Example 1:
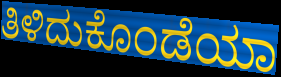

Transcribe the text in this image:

ತಿಳಿದುಕೊಂಡೆಯಾ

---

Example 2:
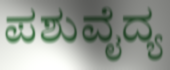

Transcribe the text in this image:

ಪಶುವೈದ್ಯ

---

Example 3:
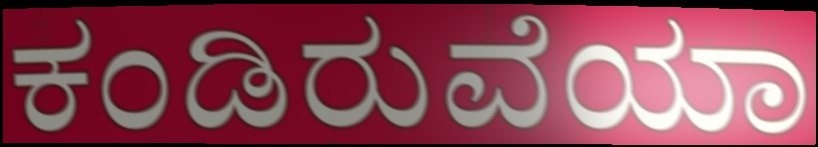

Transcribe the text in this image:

ಕಂಡಿರುವೆಯಾ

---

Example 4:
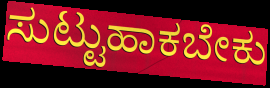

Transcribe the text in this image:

ಸುಟ್ಟುಹಾಕಬೇಕು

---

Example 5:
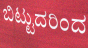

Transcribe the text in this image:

ಬಿಟ್ಟುದರಿಂದ